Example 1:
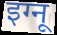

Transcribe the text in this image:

इग्‍नू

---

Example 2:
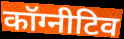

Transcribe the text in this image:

कॉग्नीटिव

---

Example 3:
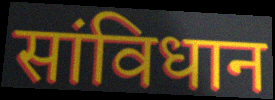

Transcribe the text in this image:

सांविधान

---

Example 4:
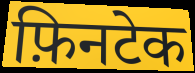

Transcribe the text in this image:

फ़िनटेक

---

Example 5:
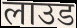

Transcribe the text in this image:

लाउड